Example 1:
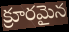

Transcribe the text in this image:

క్రూరమైన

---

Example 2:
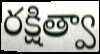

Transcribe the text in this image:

రక్షిత్వా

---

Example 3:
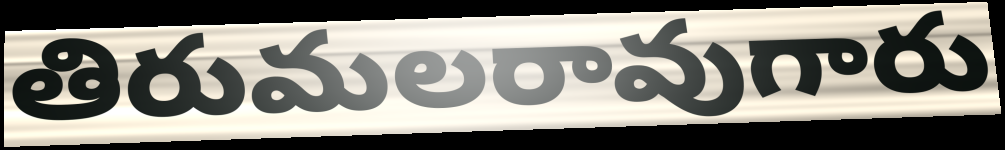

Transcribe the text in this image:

తిరుమలరావుగారు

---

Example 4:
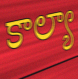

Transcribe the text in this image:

కాల్యా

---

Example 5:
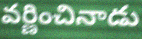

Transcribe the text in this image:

వర్ణించినాడు